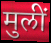
मुलीं